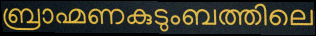
ബ്രാഹ്മണകുടുംബത്തിലെ